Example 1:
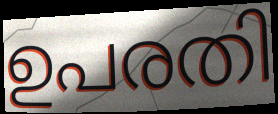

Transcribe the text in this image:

ഉപരതി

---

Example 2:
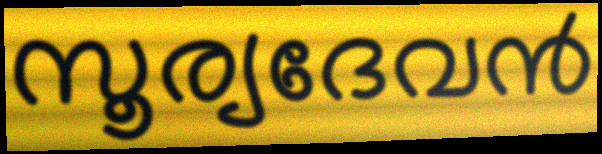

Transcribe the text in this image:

സൂര്യദേവൻ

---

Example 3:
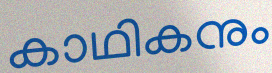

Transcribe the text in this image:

കാഥികനും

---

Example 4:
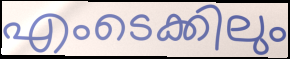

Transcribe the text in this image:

എംടെക്കിലും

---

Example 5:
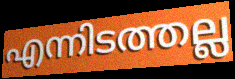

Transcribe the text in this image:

എന്നിടത്തല്ല